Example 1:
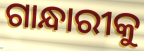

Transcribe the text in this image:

ଗାନ୍ଧାରୀକୁ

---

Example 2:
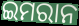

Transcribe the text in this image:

ଇମରାନ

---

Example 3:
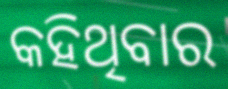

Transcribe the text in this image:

କହିଥିବାର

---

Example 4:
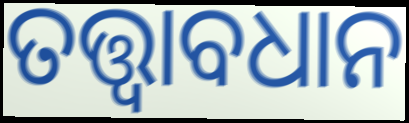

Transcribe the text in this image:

ତତ୍ତ୍ବାବଧାନ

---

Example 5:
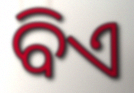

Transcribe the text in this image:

ବିଏ